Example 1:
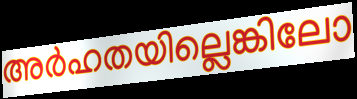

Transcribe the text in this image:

അർഹതയില്ലെങ്കിലോ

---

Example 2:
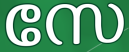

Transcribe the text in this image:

സേ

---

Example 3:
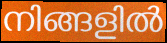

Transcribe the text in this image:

നിങ്ങളിൽ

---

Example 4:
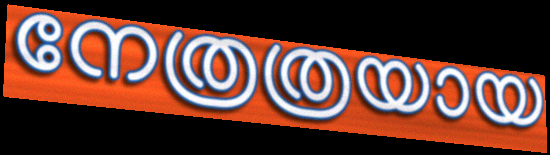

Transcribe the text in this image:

നേത്രത്രയായ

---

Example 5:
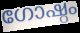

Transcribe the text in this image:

ഗോഷ്ഠം